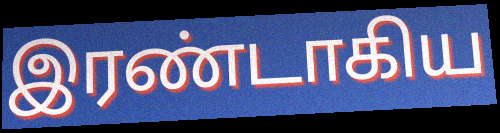
இரண்டாகிய